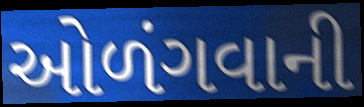
ઓળંગવાની